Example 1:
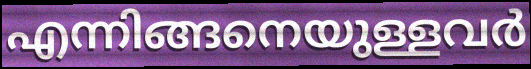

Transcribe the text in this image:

എന്നിങ്ങനെയുള്ളവർ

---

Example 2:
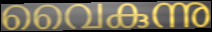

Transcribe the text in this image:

വൈകുന്നു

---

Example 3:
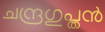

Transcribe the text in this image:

ചന്ദ്രഗുപ്തൻ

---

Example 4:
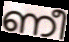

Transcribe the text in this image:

ണീ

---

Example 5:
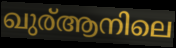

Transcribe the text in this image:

ഖുര്ആനിലെ